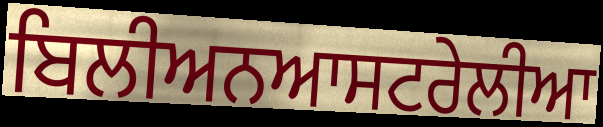
ਬਿਲੀਅਨਆਸਟਰੇਲੀਆ